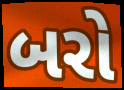
બરો